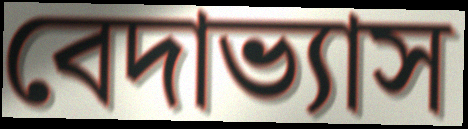
বেদাভ্যাস